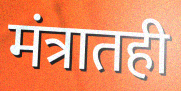
मंत्रातही